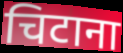
चिटाना